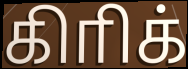
கிரிக்